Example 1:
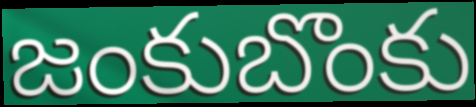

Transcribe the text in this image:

జంకుబొంకు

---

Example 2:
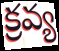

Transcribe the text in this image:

క్రవ్య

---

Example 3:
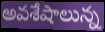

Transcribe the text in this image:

అవశేషాలున్న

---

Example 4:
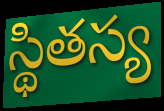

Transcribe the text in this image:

స్థితస్య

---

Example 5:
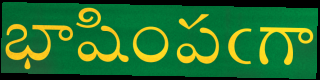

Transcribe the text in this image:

భాషింపఁగా